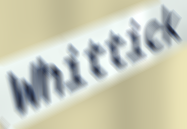
Whittick